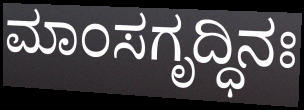
ಮಾಂಸಗೃದ್ಧಿನಃ